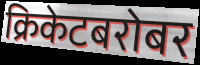
क्रिकेटबरोबर